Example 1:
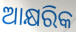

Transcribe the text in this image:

ଆକ୍ଷରିକ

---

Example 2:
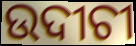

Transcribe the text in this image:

ଉଦୀଚୀ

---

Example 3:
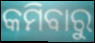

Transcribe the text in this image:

କମିବାରୁ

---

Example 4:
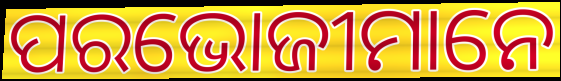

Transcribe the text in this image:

ପରଭୋଜୀମାନେ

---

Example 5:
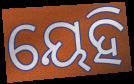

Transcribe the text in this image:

ୟେହି